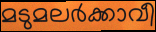
മടുമലർക്കാവീ